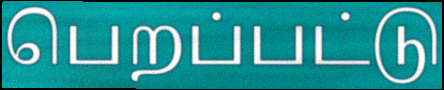
பெறப்பட்டு